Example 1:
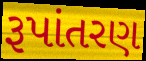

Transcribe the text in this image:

રૂપાંતરણ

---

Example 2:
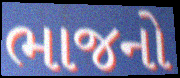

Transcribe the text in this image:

ભાજનો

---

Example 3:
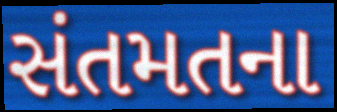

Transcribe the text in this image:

સંતમતના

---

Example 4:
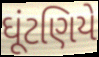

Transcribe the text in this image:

ઘૂંટણિયે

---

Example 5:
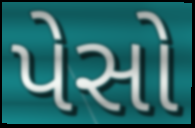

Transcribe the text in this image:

પેસો